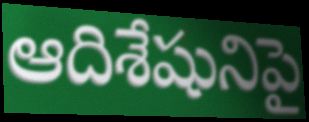
ఆదిశేషునిపై